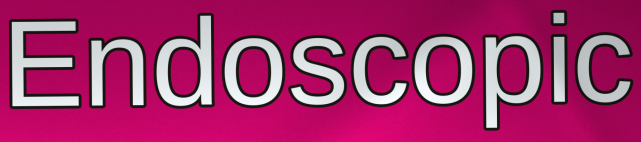
Endoscopic